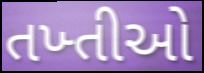
તખ્તીઓ